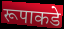
रूपाकडे